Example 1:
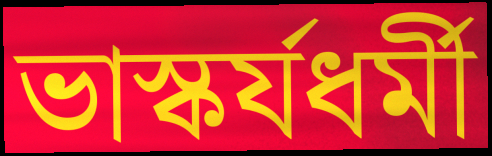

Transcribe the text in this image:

ভাস্কর্যধর্মী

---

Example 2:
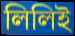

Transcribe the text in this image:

লিলিই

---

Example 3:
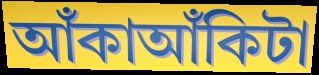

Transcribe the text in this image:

আঁকাআঁকিটা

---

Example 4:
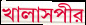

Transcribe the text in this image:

খালাসপীর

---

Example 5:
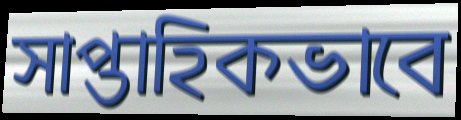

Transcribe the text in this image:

সাপ্তাহিকভাবে